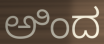
ಅಿಂದ